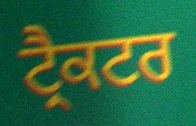
ਟ੍ਰੈਕਟਰ